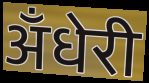
अँधेरी